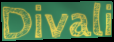
Divali